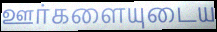
ஊர்களையுடைய